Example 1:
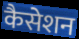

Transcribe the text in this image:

कैसेशन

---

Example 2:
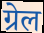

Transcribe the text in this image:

ग्रेल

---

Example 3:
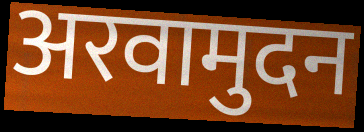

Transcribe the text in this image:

अरवामुदन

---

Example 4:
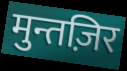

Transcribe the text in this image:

मुन्तज़िर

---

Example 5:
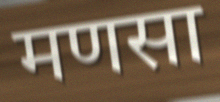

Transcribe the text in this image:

मणसा